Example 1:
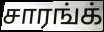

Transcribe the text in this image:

சாரங்க்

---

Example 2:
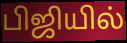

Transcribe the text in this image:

பிஜியில்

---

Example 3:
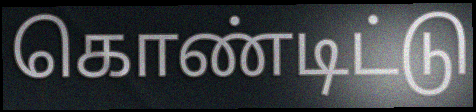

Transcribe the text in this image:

கொண்டிட்டு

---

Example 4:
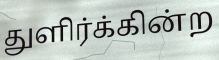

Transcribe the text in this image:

துளிர்க்கின்ற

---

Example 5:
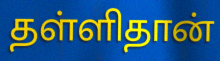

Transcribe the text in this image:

தள்ளிதான்